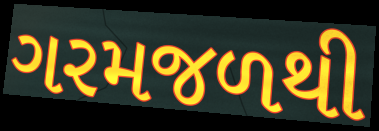
ગરમજળથી